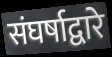
संघर्षाद्वारे